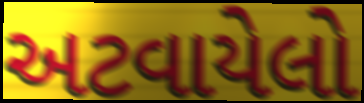
અટવાયેલો